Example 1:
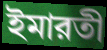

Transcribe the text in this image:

ইমারতী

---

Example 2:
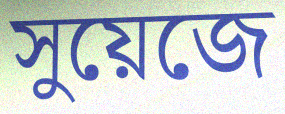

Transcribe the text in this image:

সুয়েজে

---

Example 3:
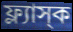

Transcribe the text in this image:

ফ্ল্যাস্‌ক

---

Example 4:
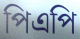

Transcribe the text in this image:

পিএপি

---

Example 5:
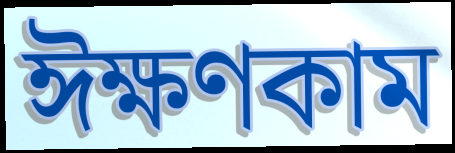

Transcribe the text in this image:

ঈক্ষণকাম